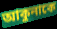
আকুনাকে